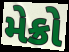
મેક્રો